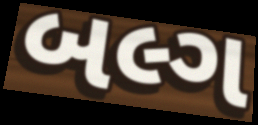
બલ્ગ